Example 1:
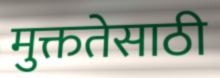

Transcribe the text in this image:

मुक्ततेसाठी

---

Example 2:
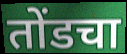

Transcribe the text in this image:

तोंडचा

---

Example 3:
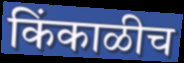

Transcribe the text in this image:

किंकाळीच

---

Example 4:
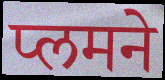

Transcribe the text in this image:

प्लमने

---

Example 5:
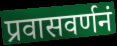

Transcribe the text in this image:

प्रवासवर्णनं